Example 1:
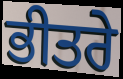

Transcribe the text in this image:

ਭੀਤਰੇ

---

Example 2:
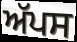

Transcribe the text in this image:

ਅੱਪਸ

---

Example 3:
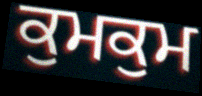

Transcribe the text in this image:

ਕੁਮਕੁਮ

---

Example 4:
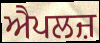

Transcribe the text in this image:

ਐਪਲਜ਼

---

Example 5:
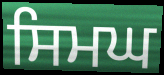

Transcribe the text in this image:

ਸਿਮਘ